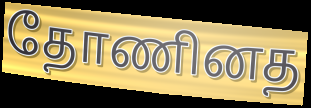
தோணினத